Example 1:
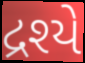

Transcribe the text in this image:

દ્રશ્યે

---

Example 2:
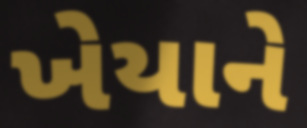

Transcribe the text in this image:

ખેયાને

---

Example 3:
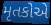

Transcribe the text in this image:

મૃતકોએ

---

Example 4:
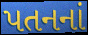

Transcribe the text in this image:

પતનનાં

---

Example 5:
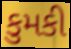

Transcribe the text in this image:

કુમકી